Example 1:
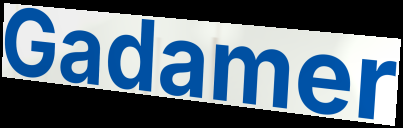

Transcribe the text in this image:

Gadamer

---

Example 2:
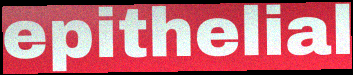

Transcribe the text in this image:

epithelial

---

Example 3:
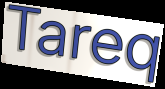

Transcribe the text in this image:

Tareq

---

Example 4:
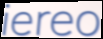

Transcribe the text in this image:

iereo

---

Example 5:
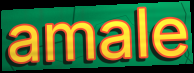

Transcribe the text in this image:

amale